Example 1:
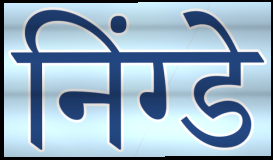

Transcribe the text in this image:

निंग्डे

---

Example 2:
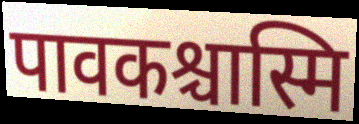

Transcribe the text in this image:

पावकश्चास्मि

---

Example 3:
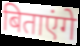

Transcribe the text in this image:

बिताएंगे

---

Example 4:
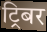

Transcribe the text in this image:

ट्रिबर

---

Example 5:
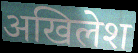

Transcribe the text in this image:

अखिलेश